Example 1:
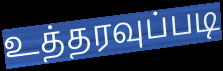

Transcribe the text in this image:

உத்தரவுப்படி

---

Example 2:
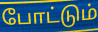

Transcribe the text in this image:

போட்டும்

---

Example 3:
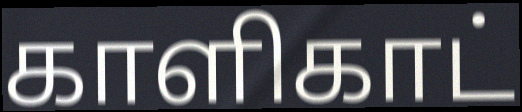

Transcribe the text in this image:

காளிகாட்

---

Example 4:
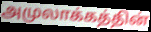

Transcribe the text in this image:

அமுலாக்கத்தின்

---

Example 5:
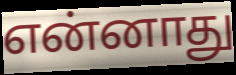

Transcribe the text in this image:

என்னாது